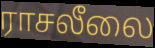
ராசலீலை